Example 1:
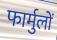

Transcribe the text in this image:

फार्मुलों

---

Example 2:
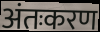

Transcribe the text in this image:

अंतःकरण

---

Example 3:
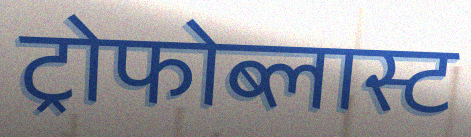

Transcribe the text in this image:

ट्रोफोब्लास्ट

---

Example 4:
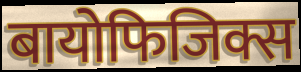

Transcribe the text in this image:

बायोफिजिक्स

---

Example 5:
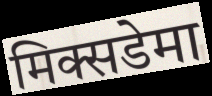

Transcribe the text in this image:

मिक्सडेमा